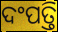
ଦଂପତ୍ତି